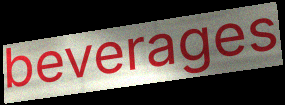
beverages